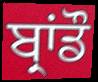
ਬ੍ਰਾਂਡੌ